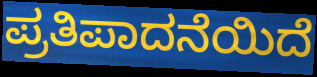
ಪ್ರತಿಪಾದನೆಯಿದೆ